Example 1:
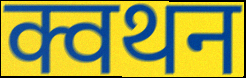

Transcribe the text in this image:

क्वथन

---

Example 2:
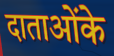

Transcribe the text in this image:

दाताओंके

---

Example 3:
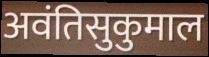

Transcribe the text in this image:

अवंतिसुकुमाल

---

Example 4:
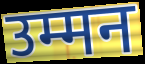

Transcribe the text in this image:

उम्मन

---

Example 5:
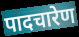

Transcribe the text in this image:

पादचारेण